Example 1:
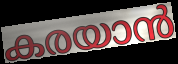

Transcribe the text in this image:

കരയാൻ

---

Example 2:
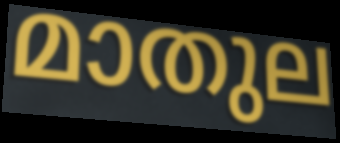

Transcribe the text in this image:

മാതുല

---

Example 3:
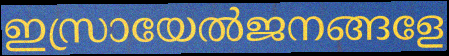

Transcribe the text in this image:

ഇസ്രായേൽജനങ്ങളേ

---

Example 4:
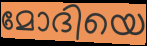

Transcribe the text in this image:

മോദിയെ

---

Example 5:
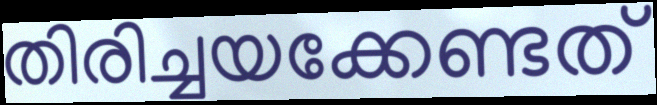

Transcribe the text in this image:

തിരിച്ചയക്കേണ്ടത്